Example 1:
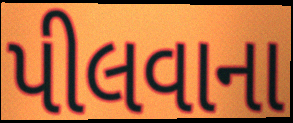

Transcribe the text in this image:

પીલવાના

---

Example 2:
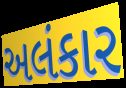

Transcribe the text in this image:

અલંકાર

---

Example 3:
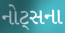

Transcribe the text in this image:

નોટ્સના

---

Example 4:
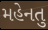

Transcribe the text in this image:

મહેનતુ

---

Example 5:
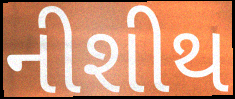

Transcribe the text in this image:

નીશીથ